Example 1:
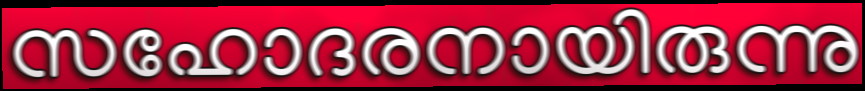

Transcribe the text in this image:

സഹോദരനായിരുന്നു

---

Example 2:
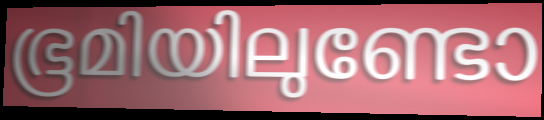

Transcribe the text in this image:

ഭൂമിയിലുണ്ടോ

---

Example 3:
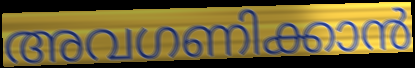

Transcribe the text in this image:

അവഗണിക്കാൻ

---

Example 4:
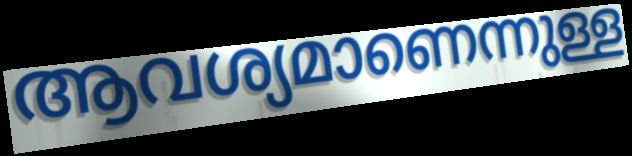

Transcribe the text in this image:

ആവശ്യമാണെന്നുള്ള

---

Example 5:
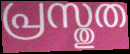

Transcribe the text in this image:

പ്രസ്തുത